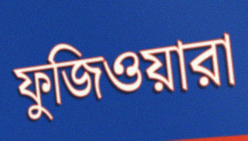
ফুজিওয়ারা